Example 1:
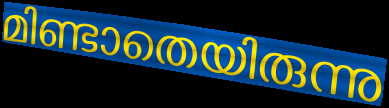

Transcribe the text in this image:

മിണ്ടാതെയിരുന്നു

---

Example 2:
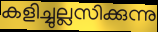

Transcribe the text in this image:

കളിച്ചുല്ലസിക്കുന്നു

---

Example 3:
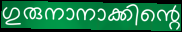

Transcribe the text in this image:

ഗുരുനാനാക്കിന്റെ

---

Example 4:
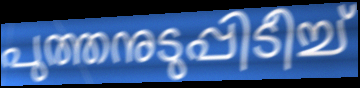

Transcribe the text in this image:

പുത്തനുടുപ്പിടീച്ച്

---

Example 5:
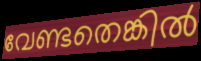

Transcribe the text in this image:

വേണ്ടതെങ്കിൽ